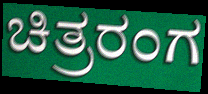
ಚಿತ್ರರಂಗ